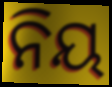
ନିୟ